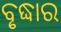
ବୃଦ୍ଧାର